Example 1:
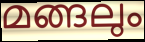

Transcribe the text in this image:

മങ്ങലും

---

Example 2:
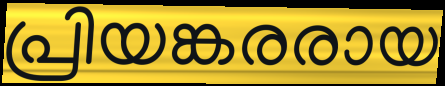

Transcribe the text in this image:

പ്രിയങ്കരരായ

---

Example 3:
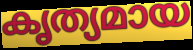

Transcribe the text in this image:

കൃത്യമായ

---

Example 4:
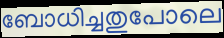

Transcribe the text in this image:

ബോധിച്ചതുപോലെ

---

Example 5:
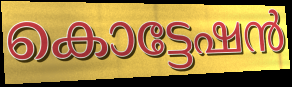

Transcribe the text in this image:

കൊട്ടേഷൻ